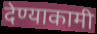
देण्याकामी